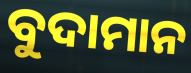
ବୁଦାମାନ